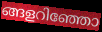
ങ്ങളറിഞ്ഞോ